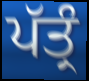
ਪੱਤ੍ਰੰ